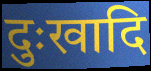
दुःखादि